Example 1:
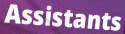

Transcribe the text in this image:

Assistants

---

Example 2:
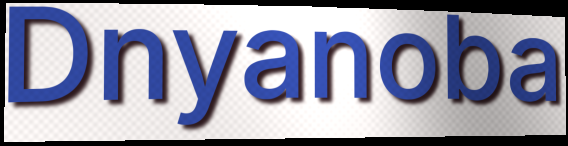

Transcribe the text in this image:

Dnyanoba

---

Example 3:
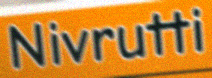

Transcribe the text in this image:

Nivrutti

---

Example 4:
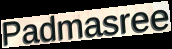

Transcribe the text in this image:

Padmasree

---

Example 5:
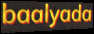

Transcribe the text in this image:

baalyada